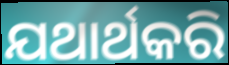
ଯଥାର୍ଥକରି